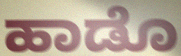
ಹಾಡೊ